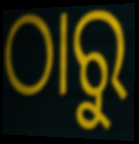
ଠାରୁ